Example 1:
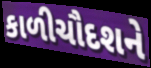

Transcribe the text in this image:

કાળીચૌદશને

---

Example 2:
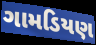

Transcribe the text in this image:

ગામડિયણ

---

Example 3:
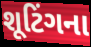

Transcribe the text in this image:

શૂટિંગના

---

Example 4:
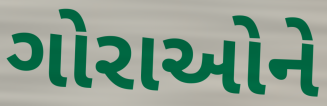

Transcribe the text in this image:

ગોરાઓને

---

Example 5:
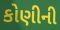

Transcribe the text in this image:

કોણીની